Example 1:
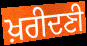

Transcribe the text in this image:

ਖ਼ਰੀਦਣੀ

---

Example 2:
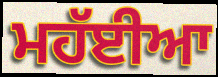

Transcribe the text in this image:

ਮਹੱਈਆ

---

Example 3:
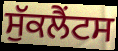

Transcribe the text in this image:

ਸੁੱਕਲੈਂਟਸ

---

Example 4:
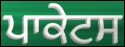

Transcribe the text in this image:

ਪਾਕੇਟਸ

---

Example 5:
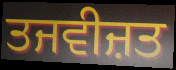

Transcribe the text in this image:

ਤਜਵੀਜ਼ਤ